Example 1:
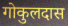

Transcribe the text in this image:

गोकुलदास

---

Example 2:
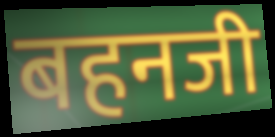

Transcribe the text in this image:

बहनजी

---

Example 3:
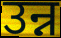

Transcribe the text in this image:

उन्न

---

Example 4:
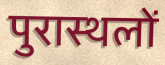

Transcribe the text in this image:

पुरास्थलों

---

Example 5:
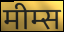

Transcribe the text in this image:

मीम्स